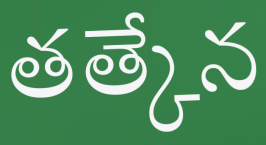
తత్కేన